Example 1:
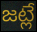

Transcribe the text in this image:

జట్లే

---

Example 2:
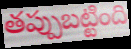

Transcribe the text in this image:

తప్పుబట్టింది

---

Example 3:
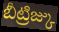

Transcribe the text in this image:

బీట్రిజ్కు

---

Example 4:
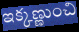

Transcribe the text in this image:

ఇక్కణ్ణుంచి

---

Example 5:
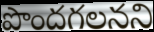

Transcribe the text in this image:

పొందగలనని